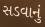
સડવાનું